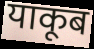
याकूब